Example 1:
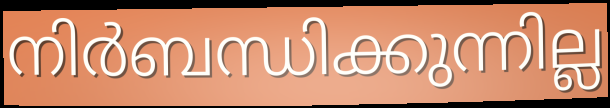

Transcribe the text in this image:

നിർബന്ധിക്കുന്നില്ല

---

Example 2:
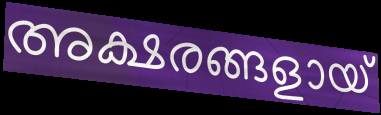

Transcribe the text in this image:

അക്ഷരങ്ങളായ്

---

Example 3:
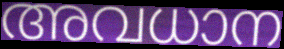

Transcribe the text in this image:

അവധാന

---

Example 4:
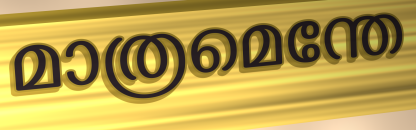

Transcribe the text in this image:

മാത്രമെന്തേ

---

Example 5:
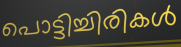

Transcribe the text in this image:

പൊട്ടിച്ചിരികൾ